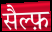
सैल्फ़